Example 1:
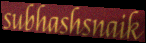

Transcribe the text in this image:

subhashsnaik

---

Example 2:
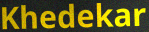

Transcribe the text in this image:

Khedekar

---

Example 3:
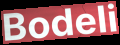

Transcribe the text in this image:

Bodeli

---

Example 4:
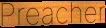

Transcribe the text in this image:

Preacher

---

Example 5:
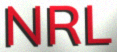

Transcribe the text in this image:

NRL